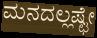
ಮನದಲ್ಲಷ್ಟೇ